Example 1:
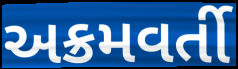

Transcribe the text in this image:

અક્રમવર્તી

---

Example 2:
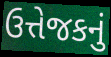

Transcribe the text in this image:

ઉત્તેજકનું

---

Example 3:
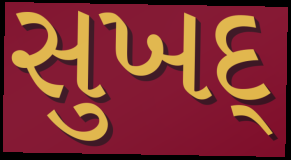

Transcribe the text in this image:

સુખદ્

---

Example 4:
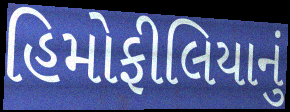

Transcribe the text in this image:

હિમોફીલિયાનું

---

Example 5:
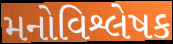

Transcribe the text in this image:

મનોવિશ્લેષક